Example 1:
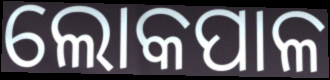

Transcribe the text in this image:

ଲୋକପାଳ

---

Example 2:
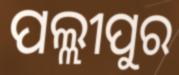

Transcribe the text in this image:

ପଲ୍ଲୀପୁର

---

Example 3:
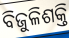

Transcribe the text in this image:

ବିଜୁଳିଶକ୍ତି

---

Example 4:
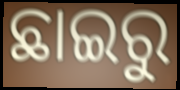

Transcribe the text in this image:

ଛାଇରୁ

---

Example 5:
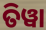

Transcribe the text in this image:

ତିୱା